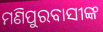
ମଣିପୁରବାସୀଙ୍କ